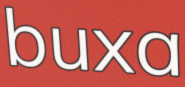
buxa